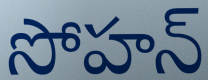
సోహన్